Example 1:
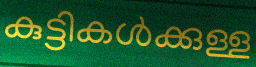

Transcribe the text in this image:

കുട്ടികൾക്കുള്ള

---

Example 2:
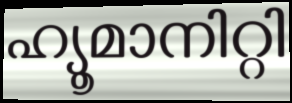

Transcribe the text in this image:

ഹ്യൂമാനിറ്റി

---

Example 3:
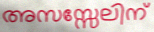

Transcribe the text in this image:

അസസ്സേലിന്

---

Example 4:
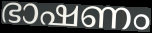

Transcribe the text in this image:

ഭാഷണം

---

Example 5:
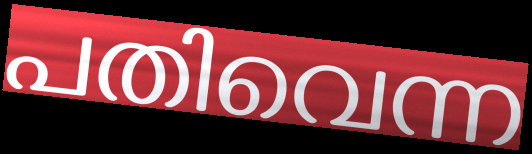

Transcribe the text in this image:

പതിവെന്ന